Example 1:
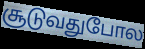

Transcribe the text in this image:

சூடுவதுபோல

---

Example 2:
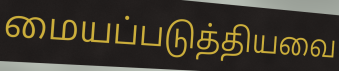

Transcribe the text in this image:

மையப்படுத்தியவை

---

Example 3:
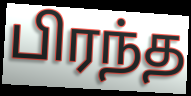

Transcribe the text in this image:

பிரந்த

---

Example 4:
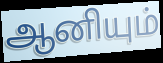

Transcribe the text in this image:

ஆனியும்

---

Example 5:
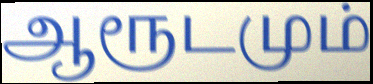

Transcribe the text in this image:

ஆரூடமும்